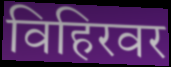
विहिरवर